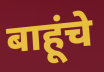
बाहूंचे